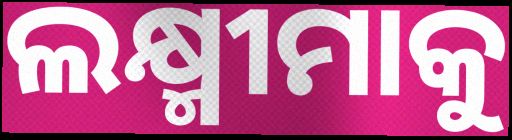
ଲକ୍ଷ୍ମୀମାକୁ